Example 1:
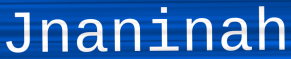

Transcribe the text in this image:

Jnaninah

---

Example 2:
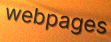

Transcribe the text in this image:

webpages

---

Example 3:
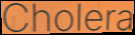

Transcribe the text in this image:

Cholera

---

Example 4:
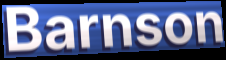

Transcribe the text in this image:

Barnson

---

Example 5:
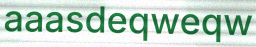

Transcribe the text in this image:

aaasdeqweqw